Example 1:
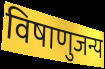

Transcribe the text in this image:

विषाणुजन्य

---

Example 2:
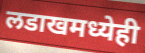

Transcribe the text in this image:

लडाखमध्येही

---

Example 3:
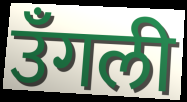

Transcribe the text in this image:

उँगली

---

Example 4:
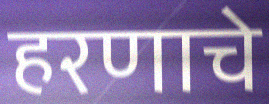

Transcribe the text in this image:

हरणाचे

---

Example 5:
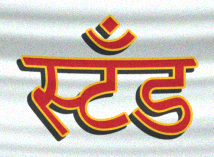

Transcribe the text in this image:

स्टँड